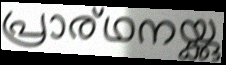
പ്രാര്ഥനയ്ക്കു